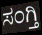
ಸಂಗ್ತಿ